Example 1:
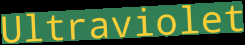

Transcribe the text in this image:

Ultraviolet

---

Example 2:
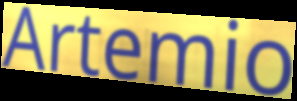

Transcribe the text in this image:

Artemio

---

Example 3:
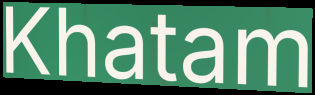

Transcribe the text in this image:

Khatam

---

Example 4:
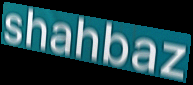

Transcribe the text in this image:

shahbaz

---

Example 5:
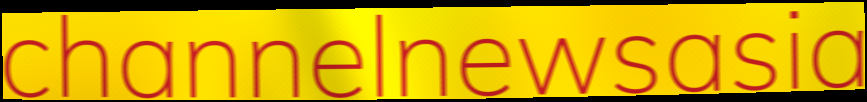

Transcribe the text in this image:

channelnewsasia